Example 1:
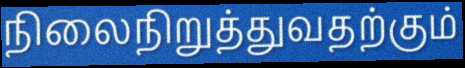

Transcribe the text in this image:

நிலைநிறுத்துவதற்கும்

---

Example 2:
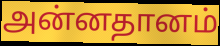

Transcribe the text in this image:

அன்னதானம்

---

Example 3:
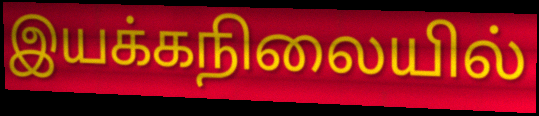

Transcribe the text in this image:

இயக்கநிலையில்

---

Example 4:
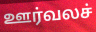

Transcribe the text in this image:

ஊர்வலச்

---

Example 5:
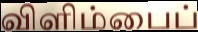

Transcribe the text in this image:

விளிம்பைப்